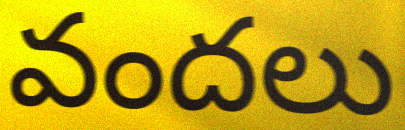
వందలు